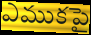
ఎముకపై